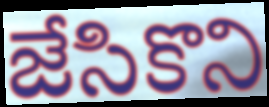
జేసికొని